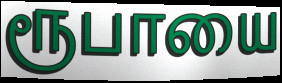
ரூபாயை